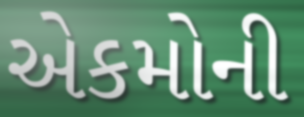
એકમોની